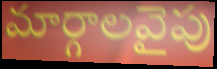
మార్గాలవైపు